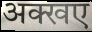
अक्खए